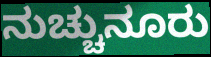
ನುಚ್ಚುನೂರು